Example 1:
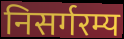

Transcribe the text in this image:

निसर्गरम्य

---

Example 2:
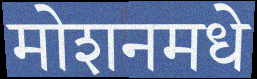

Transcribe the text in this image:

मोशनमधे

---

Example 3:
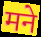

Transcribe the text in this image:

मने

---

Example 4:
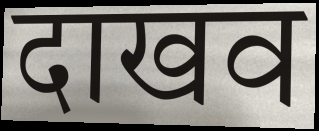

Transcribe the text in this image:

दाखव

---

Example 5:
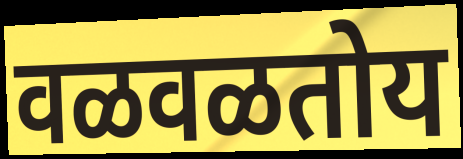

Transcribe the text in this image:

वळवळतोय